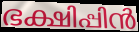
ഭക്ഷിപ്പിൻ